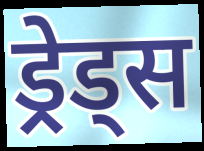
ड्रेड्स